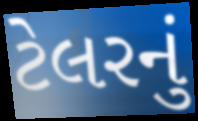
ટેલરનું